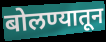
बोलण्यातून